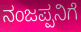
ನಂಜಪ್ಪನಿಗೆ